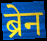
ब्रेन